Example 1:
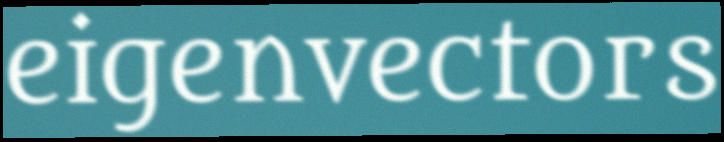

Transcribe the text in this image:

eigenvectors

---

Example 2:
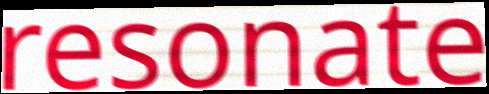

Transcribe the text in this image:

resonate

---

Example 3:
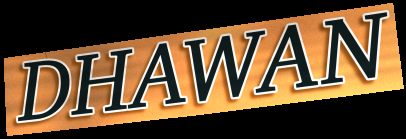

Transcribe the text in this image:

DHAWAN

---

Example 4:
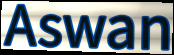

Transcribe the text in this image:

Aswan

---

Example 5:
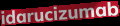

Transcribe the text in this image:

idarucizumab